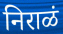
निराळं